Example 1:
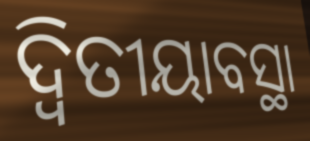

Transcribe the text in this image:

ଦ୍ବିତୀୟାବସ୍ଥା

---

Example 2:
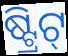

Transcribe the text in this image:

ଷ୍ଟ୍ରିଟ୍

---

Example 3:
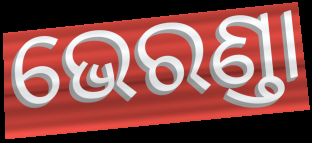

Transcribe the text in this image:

ଭେରଣ୍ଡା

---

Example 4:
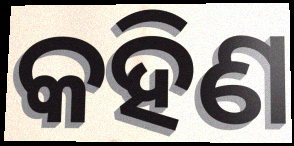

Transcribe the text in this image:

କହିଣ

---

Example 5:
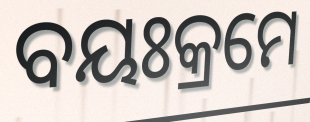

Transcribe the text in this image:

ବୟଃକ୍ରମେ